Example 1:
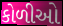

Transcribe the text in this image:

કોળીઓ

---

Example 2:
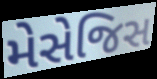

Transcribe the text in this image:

મેસેજિસ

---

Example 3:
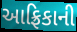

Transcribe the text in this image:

આફ્રિકાની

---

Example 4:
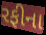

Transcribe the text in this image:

રફીના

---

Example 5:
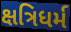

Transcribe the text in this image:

ક્ષત્રિધર્મ